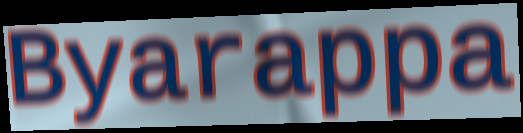
Byarappa